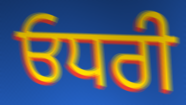
ਓਧਰੀ